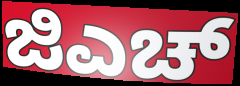
ಜಿಎಚ್